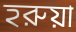
হরুয়া